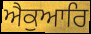
ਐਕੁਆਰਿ